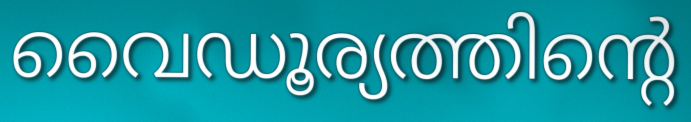
വൈഡൂര്യത്തിന്റെ